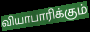
வியாபாரிக்கும்